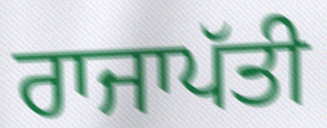
ਰਾਜਾਪੱਤੀ